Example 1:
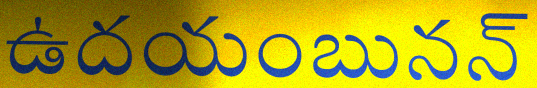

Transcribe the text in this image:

ఉదయంబునన్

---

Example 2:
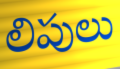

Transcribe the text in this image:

లిపులు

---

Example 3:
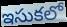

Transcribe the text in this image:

ఇసుకలో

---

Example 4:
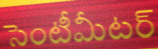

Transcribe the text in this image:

సెంటీమీటర్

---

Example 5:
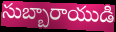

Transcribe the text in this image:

సుబ్బారాయుడి